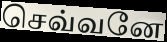
செவ்வனே